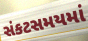
સંકટસમયમાં